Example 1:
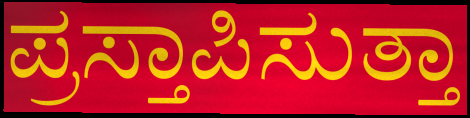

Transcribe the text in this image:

ಪ್ರಸ್ತಾಪಿಸುತ್ತಾ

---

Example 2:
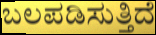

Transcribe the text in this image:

ಬಲಪಡಿಸುತ್ತಿದೆ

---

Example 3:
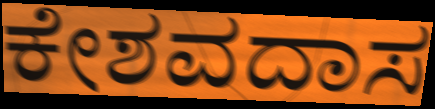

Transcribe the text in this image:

ಕೇಶವದಾಸ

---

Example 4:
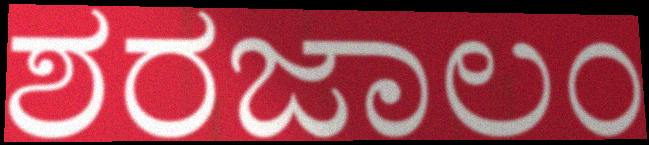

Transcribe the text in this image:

ಶರಜಾಲಂ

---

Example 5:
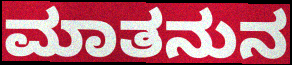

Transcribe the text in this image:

ಮಾತನುನ